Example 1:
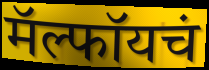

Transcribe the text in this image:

मॅल्फॉयचं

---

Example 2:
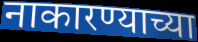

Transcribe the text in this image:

नाकारण्याच्या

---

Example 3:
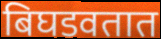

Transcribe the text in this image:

बिघडवतात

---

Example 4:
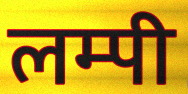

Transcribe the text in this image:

लम्पी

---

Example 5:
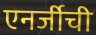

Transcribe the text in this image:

एनर्जीची